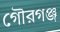
গৌরগঞ্জ